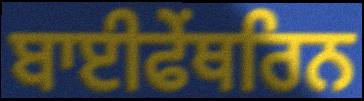
ਬਾਈਫੇਂਥਰਿਨ